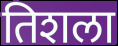
तिशला